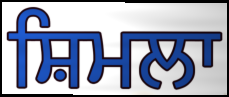
ਸ਼ਿਮਲਾ